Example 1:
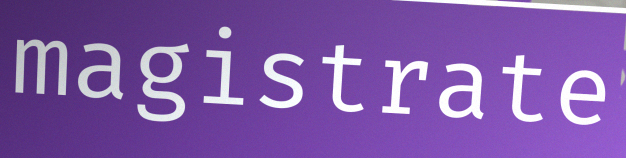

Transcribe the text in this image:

magistrate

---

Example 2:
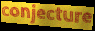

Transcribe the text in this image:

conjecture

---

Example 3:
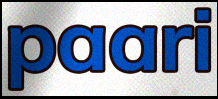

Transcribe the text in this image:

paari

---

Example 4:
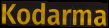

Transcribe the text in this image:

Kodarma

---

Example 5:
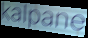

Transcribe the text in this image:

kalpane